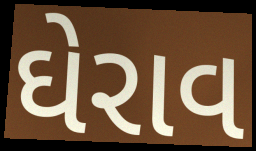
ઘેરાવ